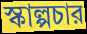
স্কাল্পচার